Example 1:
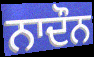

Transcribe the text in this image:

ਨਾਦੌਨ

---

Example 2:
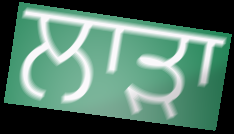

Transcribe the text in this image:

ਲਾੜਾ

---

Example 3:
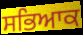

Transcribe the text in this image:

ਸਭਿਆਕ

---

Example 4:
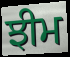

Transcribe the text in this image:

ਝੀਮ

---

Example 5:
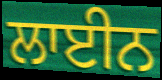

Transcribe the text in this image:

ਲਾਈਨ